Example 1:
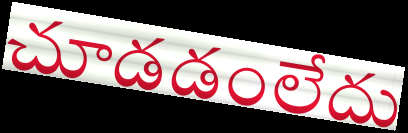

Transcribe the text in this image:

చూడడంలేదు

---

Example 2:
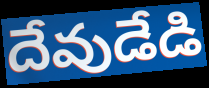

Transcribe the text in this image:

దేవుడేడి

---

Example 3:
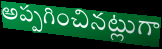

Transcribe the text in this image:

అప్పగించినట్లుగా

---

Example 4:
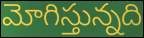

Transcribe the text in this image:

మోగిస్తున్నది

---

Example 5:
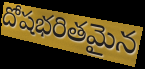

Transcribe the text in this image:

దోషభరితమైన